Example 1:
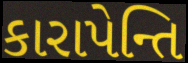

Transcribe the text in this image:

કારાપેન્તિ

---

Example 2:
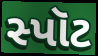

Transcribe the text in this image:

સ્પૉટ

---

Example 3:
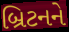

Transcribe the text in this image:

બ્રિટનને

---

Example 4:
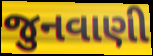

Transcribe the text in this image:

જુનવાણી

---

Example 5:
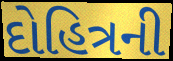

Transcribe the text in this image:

દોહિત્રની